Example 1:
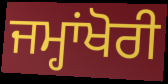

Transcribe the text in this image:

ਜਮ੍ਹਾਂਖੋਰੀ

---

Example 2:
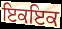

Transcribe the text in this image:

ਇਕਇਕ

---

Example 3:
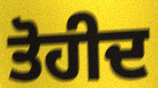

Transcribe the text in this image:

ਤੋਹੀਦ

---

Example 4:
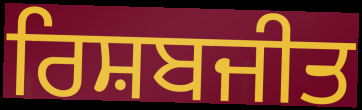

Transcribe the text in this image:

ਰਿਸ਼ਬਜੀਤ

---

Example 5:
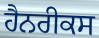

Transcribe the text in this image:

ਹੈਨਰੀਕਸ